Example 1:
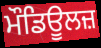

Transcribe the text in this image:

ਮੌਡਿਊਲਜ਼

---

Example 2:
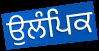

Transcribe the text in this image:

ਉਲੰਪਿਕ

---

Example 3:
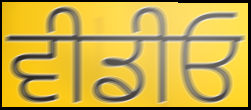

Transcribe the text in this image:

ਵੀਡੀਓ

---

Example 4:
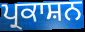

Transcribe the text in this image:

ਪ੍ਰਕਾਸ਼ਨ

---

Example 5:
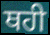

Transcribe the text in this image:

ਥਹੀ